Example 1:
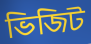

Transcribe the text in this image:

ভিজিট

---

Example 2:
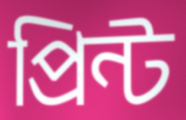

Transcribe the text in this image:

প্রিন্ট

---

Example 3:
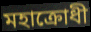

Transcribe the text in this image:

মহাক্রোধী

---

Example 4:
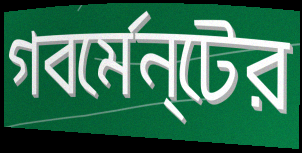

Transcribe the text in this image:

গবর্মেন্‌টের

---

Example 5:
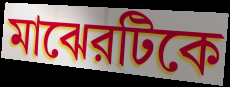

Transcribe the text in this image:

মাঝেরটিকে